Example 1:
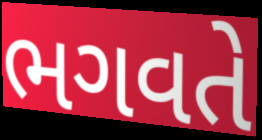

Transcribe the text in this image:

ભગવતે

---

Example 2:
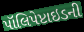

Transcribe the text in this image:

પૉલિપેપ્ટાઇડની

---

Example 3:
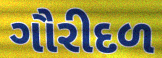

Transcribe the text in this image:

ગૌરીદળ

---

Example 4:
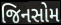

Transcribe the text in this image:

જિનસોમ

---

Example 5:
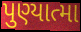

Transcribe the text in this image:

પુણ્યાત્મા